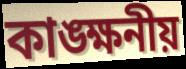
কাঙ্ক্ষনীয়